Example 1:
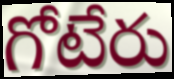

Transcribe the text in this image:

గోటేరు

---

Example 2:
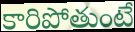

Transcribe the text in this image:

కారిపోతుంటే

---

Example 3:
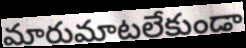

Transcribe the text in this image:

మారుమాటలేకుండా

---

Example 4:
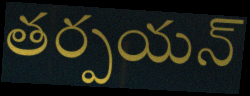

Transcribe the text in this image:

తర్పయన్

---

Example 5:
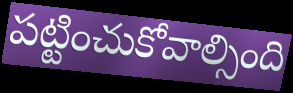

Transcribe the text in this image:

పట్టించుకోవాల్సింది